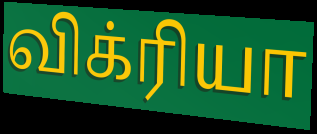
விக்ரியா